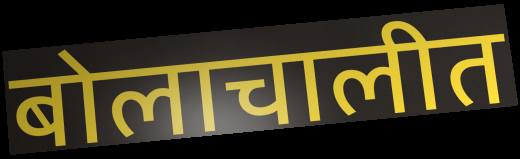
बोलाचालीत